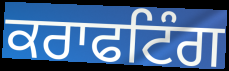
ਕਰਾਫਟਿੰਗ